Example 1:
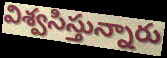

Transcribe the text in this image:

విశ్వసిస్తున్నారు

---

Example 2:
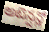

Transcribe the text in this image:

అటెన్షన్లో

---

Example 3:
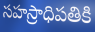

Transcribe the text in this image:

సహస్రాధిపతికి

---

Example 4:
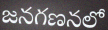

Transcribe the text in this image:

జనగణనలో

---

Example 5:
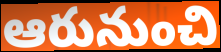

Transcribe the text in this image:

ఆరునుంచి